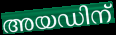
അയഡിന്